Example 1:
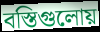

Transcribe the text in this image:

বস্তিগুলোয়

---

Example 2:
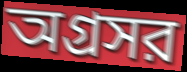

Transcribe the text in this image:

অগ্রসর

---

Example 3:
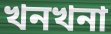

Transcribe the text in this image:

খনখনা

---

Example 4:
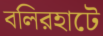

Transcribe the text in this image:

বলিরহাটে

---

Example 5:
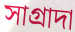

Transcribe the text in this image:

সাগ্রাদা